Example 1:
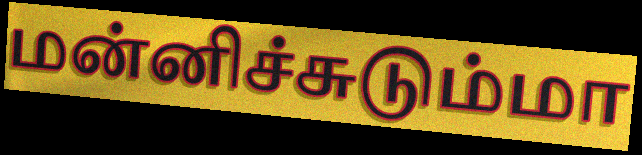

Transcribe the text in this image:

மன்னிச்சுடும்மா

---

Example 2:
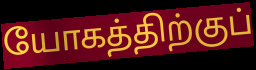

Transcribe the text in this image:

யோகத்திற்குப்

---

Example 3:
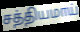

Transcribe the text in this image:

சத்தியமாய்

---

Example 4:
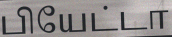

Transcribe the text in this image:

பியேட்டா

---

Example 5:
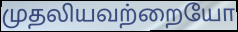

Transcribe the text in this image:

முதலியவற்றையோ